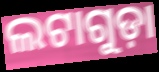
ଲଟାଗୁଡ଼ା